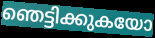
ഞെട്ടിക്കുകയോ